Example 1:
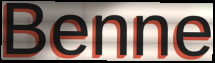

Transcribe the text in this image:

Benne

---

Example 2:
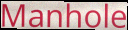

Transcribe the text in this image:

Manhole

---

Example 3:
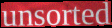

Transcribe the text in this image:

unsorted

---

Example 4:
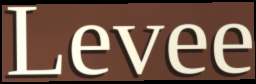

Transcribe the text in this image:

Levee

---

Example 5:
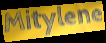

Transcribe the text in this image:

Mitylene